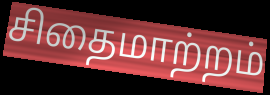
சிதைமாற்றம்